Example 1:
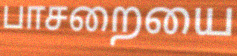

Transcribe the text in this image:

பாசறையை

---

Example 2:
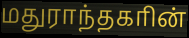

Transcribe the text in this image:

மதுராந்தகரின்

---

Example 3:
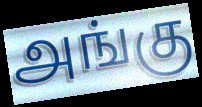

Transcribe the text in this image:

அங்கு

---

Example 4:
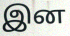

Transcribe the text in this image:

இன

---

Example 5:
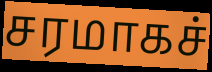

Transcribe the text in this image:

சரமாகச்